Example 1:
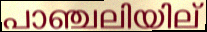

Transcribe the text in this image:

പാഞ്ചലിയില്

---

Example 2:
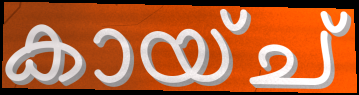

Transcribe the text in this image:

കായ്ച്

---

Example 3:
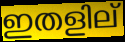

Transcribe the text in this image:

ഇതളില്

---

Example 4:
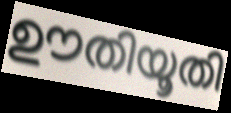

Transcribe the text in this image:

ഊതിയൂതി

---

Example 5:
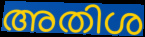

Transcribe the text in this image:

അതിശ